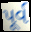
પૂર્વ